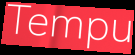
Tempu